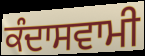
ਕੰਦਾਸਵਾਮੀ